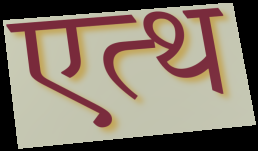
एत्थ